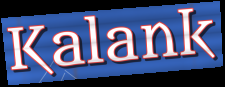
Kalank